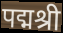
पद्मश्री